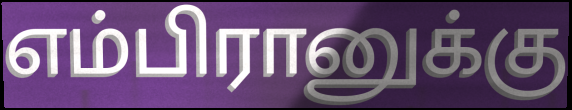
எம்பிரானுக்கு